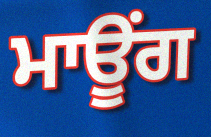
ਮਾਊਂਗ